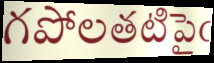
గపోలతటిపైఁ